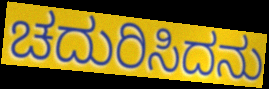
ಚದುರಿಸಿದನು